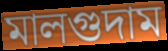
মালগুদাম